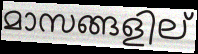
മാസങ്ങളില്